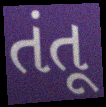
તંતૂ